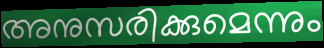
അനുസരിക്കുമെന്നും